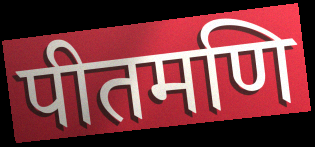
पीतमणि